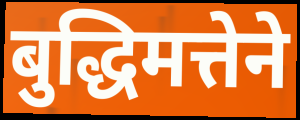
बुद्धिमत्तेने